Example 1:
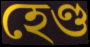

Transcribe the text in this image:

হেণ্ড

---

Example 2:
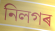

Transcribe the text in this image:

নিলগৰ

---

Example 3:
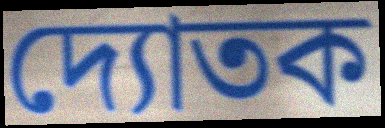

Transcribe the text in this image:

দ্যোতক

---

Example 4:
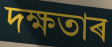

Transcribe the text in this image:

দক্ষতাৰ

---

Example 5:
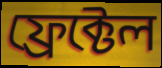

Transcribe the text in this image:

ফ্ৰেক্টেল